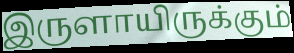
இருளாயிருக்கும்